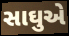
સાઘુએ